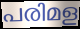
പരിമള